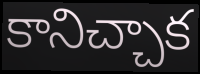
కానిచ్చాక